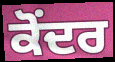
ਕੋਂਦਰ